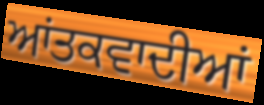
ਆਂਤਕਵਾਦੀਆਂ